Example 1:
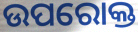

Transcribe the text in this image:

ଉପରୋକ୍ତ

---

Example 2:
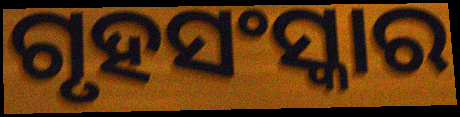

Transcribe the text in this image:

ଗୃହସଂସ୍କାର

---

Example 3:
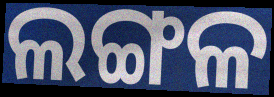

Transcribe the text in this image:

ଲଙ୍ଗଳ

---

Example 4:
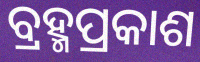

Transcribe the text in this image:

ବ୍ରହ୍ମପ୍ରକାଶ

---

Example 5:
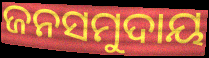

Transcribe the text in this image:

ଜନସମୁଦାୟ